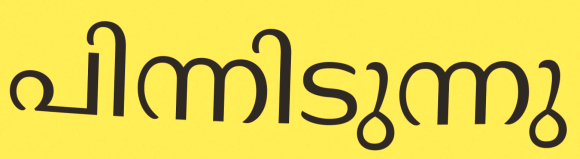
പിന്നിടുന്നു